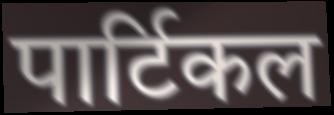
पार्टिकल